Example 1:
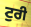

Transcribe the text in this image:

ਟੁਰੀ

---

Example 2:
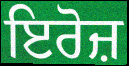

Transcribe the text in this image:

ਇਰੋਜ਼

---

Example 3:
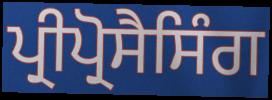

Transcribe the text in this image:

ਪ੍ਰੀਪ੍ਰੋਸੈਸਿੰਗ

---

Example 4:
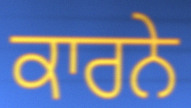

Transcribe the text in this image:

ਕਾਰਨੇ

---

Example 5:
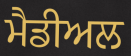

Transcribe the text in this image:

ਮੈਡੀਅਲ